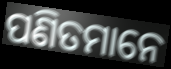
ପଣିତମାନେ